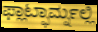
ಫ್ಲಾಟ್ಫಾರ್ಮ್ನಲ್ಲಿ